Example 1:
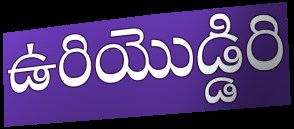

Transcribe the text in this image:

ఉరియొడ్డిరి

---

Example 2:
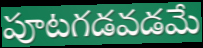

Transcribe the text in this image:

పూటగడవడమే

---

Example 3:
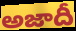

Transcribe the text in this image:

అజాదీ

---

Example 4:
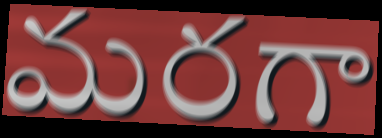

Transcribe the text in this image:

మరగా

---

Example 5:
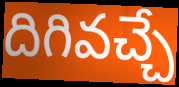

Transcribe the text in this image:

దిగివచ్చే